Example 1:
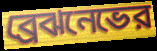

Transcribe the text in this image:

ব্রেঝনেভের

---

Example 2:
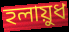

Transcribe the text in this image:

হলায়ুধ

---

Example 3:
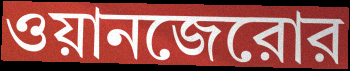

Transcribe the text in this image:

ওয়ানজেরোর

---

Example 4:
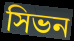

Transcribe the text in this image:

সিভন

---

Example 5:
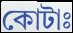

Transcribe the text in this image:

কোটাঃ